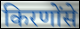
किरणोंसे